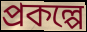
প্রকল্পে